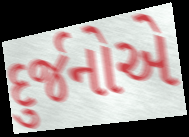
દુર્જનોએ